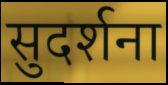
सुदर्शना